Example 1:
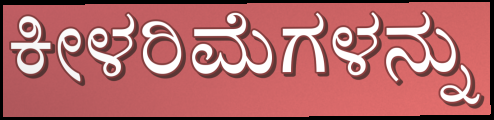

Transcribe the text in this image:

ಕೀಳರಿಮೆಗಳನ್ನು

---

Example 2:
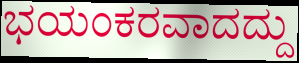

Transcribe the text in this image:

ಭಯಂಕರವಾದದ್ದು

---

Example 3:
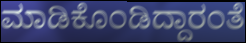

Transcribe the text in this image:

ಮಾಡಿಕೊಂಡಿದ್ದಾರಂತೆ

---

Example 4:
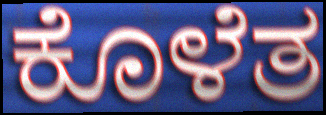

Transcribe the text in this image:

ಕೊಳೆತ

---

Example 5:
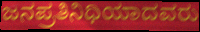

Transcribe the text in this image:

ಜನಪ್ರತಿನಿಧಿಯಾದವರು